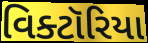
વિક્ટૉરિયા